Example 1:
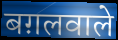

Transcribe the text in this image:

बग़लवाले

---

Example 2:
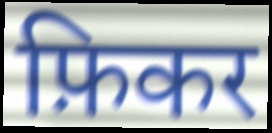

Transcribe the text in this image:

फ़िकर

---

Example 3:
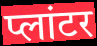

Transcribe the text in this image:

प्लांटर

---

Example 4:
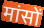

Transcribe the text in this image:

मांसों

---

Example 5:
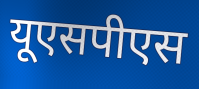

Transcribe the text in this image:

यूएसपीएस